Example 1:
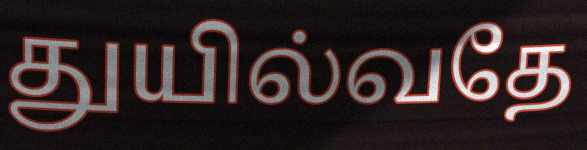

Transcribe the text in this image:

துயில்வதே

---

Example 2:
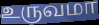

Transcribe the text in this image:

உருவமா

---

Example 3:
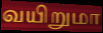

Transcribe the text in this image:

வயிறுமா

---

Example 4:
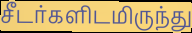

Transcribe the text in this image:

சீடர்களிடமிருந்து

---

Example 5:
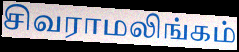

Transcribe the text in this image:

சிவராமலிங்கம்